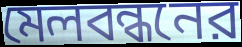
মেলবন্ধনের